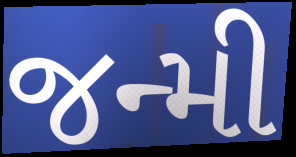
જન્મી